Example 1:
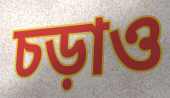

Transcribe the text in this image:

চড়াও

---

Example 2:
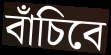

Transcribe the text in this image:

বাঁচিবে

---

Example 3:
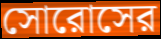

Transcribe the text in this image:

সোরোসের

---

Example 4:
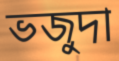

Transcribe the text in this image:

ভজুদা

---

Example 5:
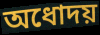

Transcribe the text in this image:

অধোদয়